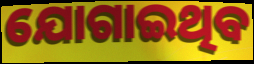
ଯୋଗାଇଥିବ